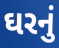
ઘરનું